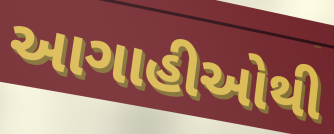
આગાહીઓથી